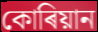
কোৰিয়ান